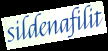
sildenafilit